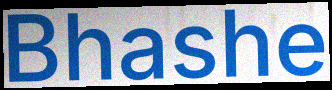
Bhashe